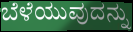
ಬೆಳೆಯುವುದನ್ನು